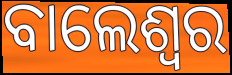
ବାଲେଶ୍ବର